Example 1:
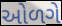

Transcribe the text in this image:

ઓળગે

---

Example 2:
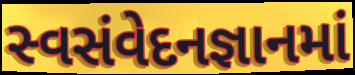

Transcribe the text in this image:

સ્વસંવેદનજ્ઞાનમાં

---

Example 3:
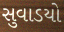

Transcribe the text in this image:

સુવાડયો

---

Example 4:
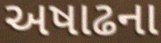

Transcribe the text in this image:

અષાઢના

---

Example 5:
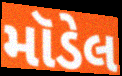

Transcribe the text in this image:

મૉડેલ